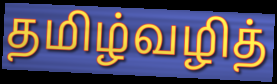
தமிழ்வழித்